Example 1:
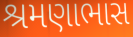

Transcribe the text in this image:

શ્રમણાભાસ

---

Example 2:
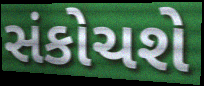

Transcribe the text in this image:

સંકોચશે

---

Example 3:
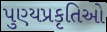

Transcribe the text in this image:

પુણ્યપ્રકૃતિઓ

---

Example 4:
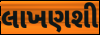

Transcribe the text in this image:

લાખણશી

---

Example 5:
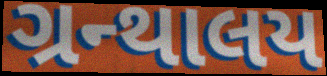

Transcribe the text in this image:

ગ્રન્થાલય